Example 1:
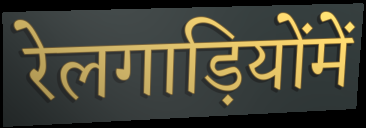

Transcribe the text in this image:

रेलगाड़ियोंमें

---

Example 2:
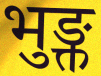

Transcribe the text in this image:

भुङ्क्त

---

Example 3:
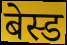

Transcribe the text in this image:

बेस्ड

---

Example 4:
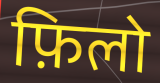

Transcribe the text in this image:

फ़िलो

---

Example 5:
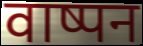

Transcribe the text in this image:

वाष्पन